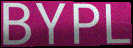
BYPL